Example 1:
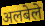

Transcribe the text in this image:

अलबेले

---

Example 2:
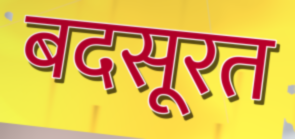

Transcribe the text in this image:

बदसूरत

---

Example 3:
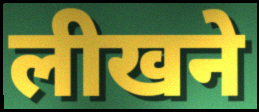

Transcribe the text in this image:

लीखने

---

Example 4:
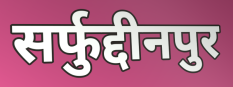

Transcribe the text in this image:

सर्फुद्दीनपुर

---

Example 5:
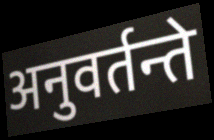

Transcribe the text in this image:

अनुवर्तन्ते